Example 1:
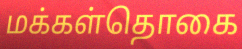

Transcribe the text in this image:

மக்கள்தொகை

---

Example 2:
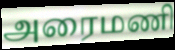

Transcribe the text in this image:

அரைமணி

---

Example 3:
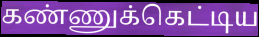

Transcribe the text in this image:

கண்ணுக்கெட்டிய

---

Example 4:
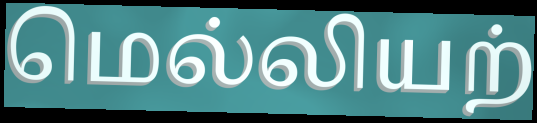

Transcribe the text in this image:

மெல்லியற்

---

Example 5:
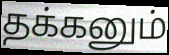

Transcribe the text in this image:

தக்கனும்